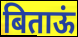
बिताऊं